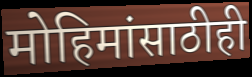
मोहिमांसाठीही